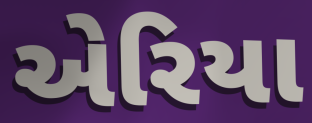
એરિયા